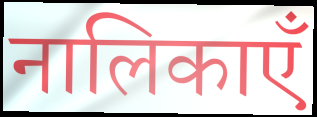
नालिकाएँ